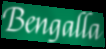
Bengalla